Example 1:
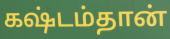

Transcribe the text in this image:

கஷ்டம்தான்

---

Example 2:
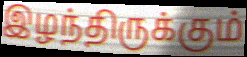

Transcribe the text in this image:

இழந்திருக்கும்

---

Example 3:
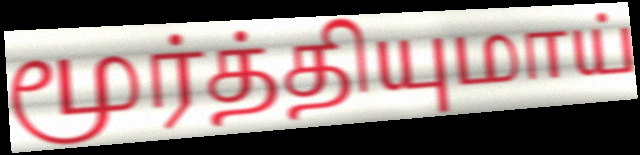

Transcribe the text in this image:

மூர்த்தியுமாய்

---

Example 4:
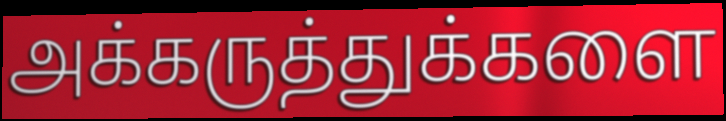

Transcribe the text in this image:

அக்கருத்துக்களை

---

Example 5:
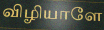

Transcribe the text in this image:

விழியாளே